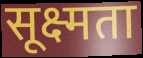
सूक्ष्मता